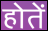
होतें